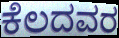
ಕೆಲದವರ